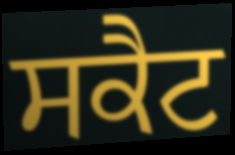
ਸਕੈਟ